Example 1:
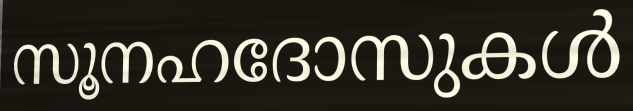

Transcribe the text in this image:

സൂനഹദോസുകൾ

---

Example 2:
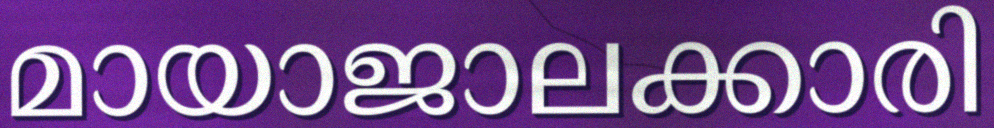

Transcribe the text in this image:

മായാജാലക്കാരി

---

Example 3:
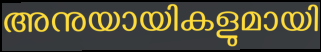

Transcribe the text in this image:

അനുയായികളുമായി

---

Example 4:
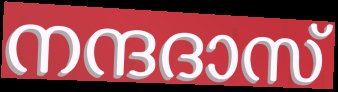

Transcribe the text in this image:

നന്ദദാസ്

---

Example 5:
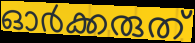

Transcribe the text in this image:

ഓർക്കരുത്